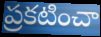
ప్రకటించా